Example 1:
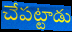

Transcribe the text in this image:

చేపట్టాడు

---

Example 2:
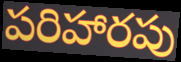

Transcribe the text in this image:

పరిహారపు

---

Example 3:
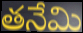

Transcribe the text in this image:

తనేమి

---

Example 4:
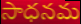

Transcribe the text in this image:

సాధనమ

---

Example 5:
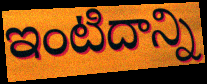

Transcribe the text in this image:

ఇంటిదాన్ని